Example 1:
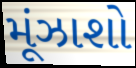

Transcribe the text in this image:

મૂંઝાશો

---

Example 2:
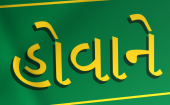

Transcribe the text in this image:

હોવાને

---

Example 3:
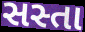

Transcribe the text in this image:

સસ્તા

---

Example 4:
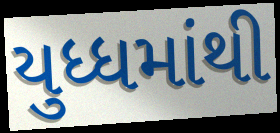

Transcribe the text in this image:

યુધ્ધમાંથી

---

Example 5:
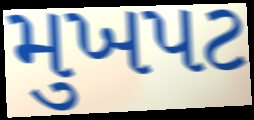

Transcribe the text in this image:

મુખપટ